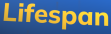
Lifespan